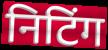
निटिंग